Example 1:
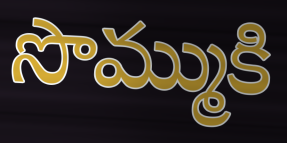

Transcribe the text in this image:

సొమ్ముకి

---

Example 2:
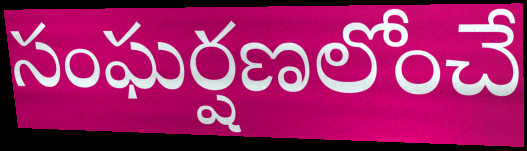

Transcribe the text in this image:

సంఘర్షణలోంచే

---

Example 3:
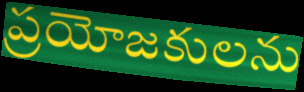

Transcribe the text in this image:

ప్రయోజకులను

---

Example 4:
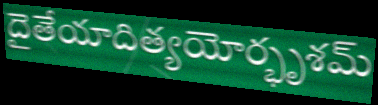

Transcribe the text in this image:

దైతేయాదిత్యయోర్భృశమ్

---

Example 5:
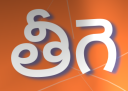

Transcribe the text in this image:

తీగె